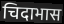
चिदाभास